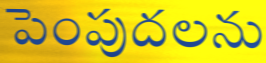
పెంపుదలను